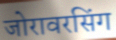
जोरावरसिंग